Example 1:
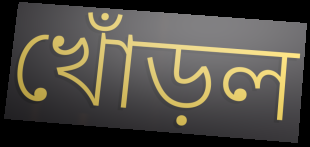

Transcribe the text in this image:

খোঁড়ল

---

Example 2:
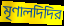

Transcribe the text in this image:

মৃণালদিদির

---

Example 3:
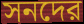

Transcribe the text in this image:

সনদের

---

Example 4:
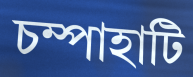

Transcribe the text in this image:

চম্পাহাটি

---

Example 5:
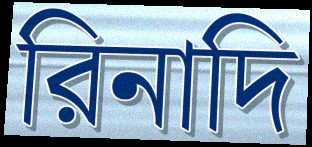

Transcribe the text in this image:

রিনাদি